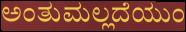
ಅಂತುಮಲ್ಲದೆಯುಂ